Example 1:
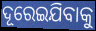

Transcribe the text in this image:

ଦୂରେଇଯିବାକୁ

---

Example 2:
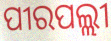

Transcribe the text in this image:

ପୀରପଲ୍ଲୀ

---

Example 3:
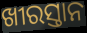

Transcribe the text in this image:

ଖୀରସ୍ତାନ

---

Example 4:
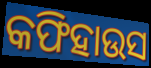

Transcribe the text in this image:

କଫିହାଉସ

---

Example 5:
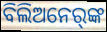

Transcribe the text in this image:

ବିଲିଅନେର୍‌ଙ୍କ